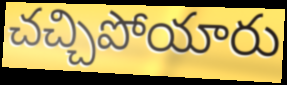
చచ్చిపోయారు